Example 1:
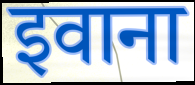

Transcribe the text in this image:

इवाना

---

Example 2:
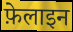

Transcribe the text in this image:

फ़ेलाइन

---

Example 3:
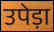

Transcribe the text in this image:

उपेड़ा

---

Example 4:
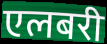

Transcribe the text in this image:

एलबरी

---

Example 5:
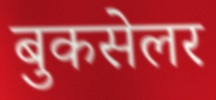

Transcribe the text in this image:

बुकसेलर